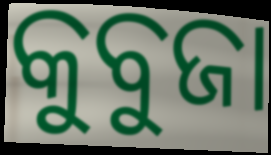
କୁବୁଜା